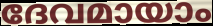
ദേവമായാം